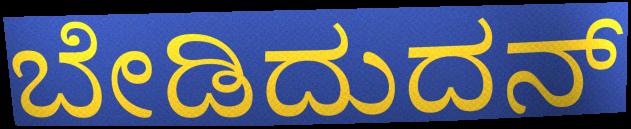
ಬೇಡಿದುದನ್